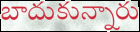
బాదుకున్నారు